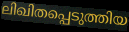
ലിഖിതപ്പെടുത്തിയ